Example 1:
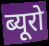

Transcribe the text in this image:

ब्यूरो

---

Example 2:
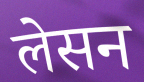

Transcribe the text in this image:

लेसन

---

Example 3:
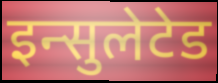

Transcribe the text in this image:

इन्सुलेटेड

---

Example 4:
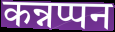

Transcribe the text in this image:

कन्नप्पन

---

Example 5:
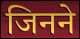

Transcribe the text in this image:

जिनने